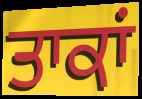
ਤਾਕਾਂ